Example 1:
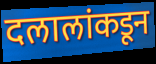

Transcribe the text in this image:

दलालांकडून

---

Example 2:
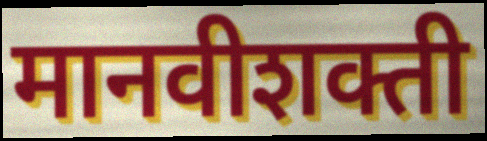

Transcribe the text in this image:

मानवीशक्ती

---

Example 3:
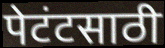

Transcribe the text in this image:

पेटंटसाठी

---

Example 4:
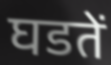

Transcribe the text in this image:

घडतें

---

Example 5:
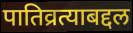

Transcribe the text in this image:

पातिव्रत्याबद्दल